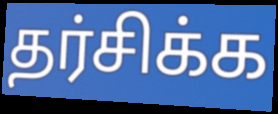
தர்சிக்க